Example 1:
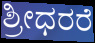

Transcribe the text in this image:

ಶ್ರೀಧರರೆ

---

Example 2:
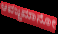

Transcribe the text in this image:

ಆವಜ್ಜಮಾನೋ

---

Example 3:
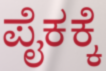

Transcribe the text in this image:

ಪೈಕಕ್ಕೆ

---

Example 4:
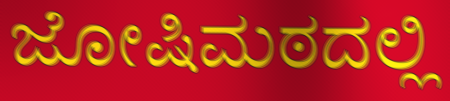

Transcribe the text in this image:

ಜೋಷಿಮಠದಲ್ಲಿ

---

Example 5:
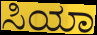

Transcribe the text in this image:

ಸಿಯಾ